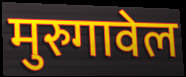
मुरुगावेल